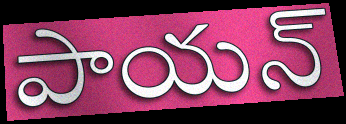
పాయన్